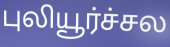
புலியூர்ச்சல